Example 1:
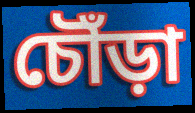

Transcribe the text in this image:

চৌঁড়া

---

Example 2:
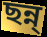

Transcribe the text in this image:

ছন্ন্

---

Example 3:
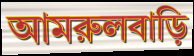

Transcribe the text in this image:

আমরুলবাড়ি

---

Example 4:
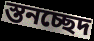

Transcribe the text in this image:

স্তনচ্ছেদ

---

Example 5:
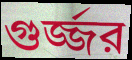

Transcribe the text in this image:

গুর্জ্জর